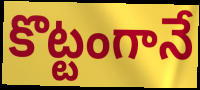
కొట్టంగానే